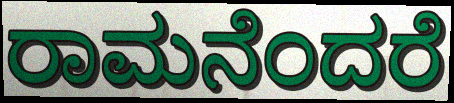
ರಾಮನೆಂದರೆ